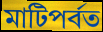
মাটিপৰ্বত